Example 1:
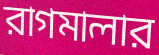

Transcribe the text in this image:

রাগমালার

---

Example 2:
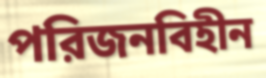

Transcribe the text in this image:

পরিজনবিহীন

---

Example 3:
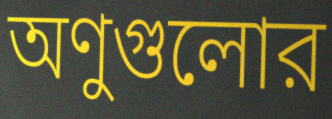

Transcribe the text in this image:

অণুগুলোর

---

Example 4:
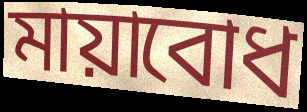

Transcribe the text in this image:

মায়াবোধ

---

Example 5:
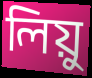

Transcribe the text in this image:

লিয়ু